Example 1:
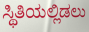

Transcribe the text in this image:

ಸ್ಥಿತಿಯಲ್ಲಿಡಲು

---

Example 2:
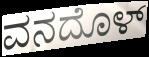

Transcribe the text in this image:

ವನದೊಳ್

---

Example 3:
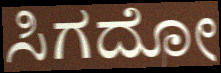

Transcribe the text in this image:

ಸಿಗದೋ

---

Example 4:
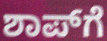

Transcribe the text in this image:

ಶಾಪ್‌ಗೆ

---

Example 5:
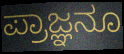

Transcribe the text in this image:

ಪ್ರಾಜ್ಞನೂ